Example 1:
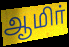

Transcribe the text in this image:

ஆமிர்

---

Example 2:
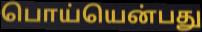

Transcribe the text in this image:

பொய்யென்பது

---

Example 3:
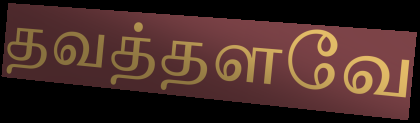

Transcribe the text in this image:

தவத்தளவே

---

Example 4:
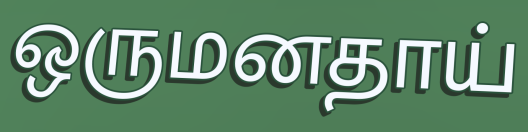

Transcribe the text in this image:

ஒருமனதாய்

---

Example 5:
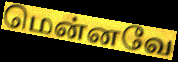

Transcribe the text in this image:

மென்னவே